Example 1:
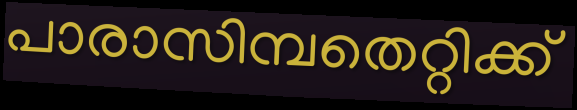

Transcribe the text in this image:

പാരാസിമ്പതെറ്റിക്ക്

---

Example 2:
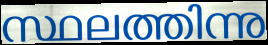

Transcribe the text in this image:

സ്ഥലത്തിന്നു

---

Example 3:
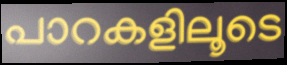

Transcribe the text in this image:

പാറകളിലൂടെ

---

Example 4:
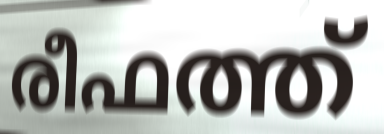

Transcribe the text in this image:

രീഫത്ത്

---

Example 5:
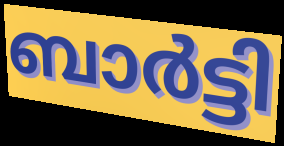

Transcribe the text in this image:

ബാർട്ടി